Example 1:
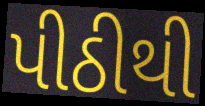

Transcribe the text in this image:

પીઠીથી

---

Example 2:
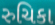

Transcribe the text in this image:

રુચિકા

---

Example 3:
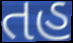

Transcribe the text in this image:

તહ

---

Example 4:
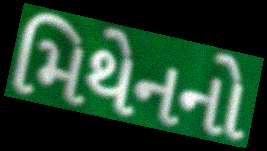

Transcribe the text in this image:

મિથેનનો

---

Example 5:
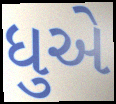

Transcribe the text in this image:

ધુએ